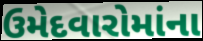
ઉમેદવારોમાંના